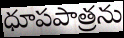
ధూపపాత్రను